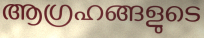
ആഗ്രഹങ്ങളുടെ